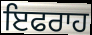
ਇਫਰਾਹ